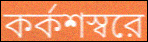
কর্কশস্বরে